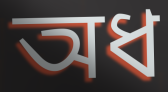
অধ